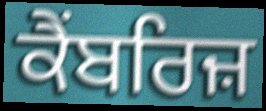
ਕੈਂਬਰਿਜ਼